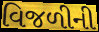
વિજળીની